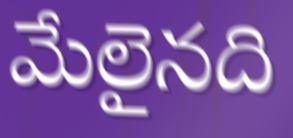
మేలైనది